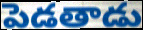
పెడతాడు